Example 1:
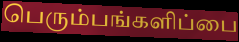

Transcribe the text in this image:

பெரும்பங்களிப்பை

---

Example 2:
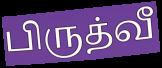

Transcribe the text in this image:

பிருத்வீ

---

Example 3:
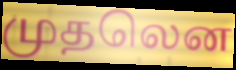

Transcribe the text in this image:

முதலென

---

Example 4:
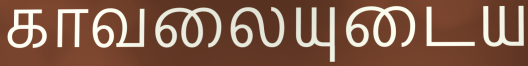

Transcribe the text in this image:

காவலையுடைய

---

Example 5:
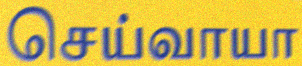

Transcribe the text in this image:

செய்வாயா